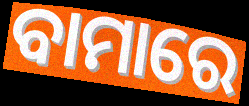
ବାମାରେ